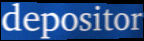
depositor